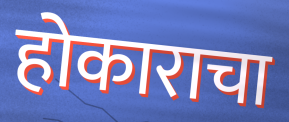
होकाराचा